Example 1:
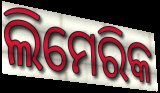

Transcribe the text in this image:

ଲିମେରିକ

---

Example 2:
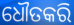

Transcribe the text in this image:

ଧୌତକରି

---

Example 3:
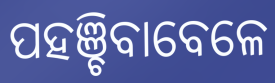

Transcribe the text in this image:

ପହଞ୍ଚିବାବେଳେ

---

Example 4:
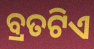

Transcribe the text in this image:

ବ୍ରତଟିଏ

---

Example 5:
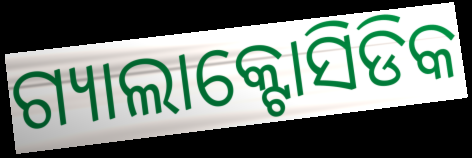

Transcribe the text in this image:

ଗ୍ୟାଲାକ୍ଟୋସିଡିକ